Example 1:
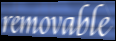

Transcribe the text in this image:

removable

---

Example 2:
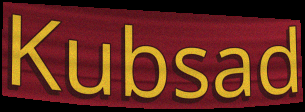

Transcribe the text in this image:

Kubsad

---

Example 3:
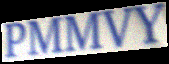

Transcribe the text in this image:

PMMVY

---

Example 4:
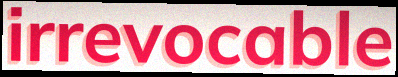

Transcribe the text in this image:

irrevocable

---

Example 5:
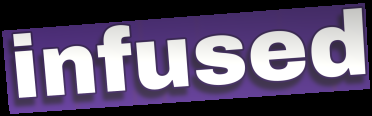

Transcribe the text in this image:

infused